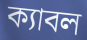
ক্যাবল